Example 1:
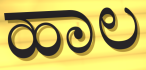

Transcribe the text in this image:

ಹಾಲ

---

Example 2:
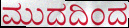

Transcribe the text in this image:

ಮುದದಿಂದ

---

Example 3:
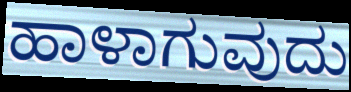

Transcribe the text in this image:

ಹಾಳಾಗುವುದು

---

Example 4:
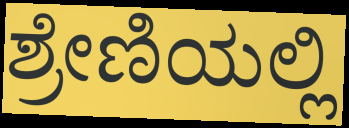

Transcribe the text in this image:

ಶ್ರೇಣಿಯಲ್ಲಿ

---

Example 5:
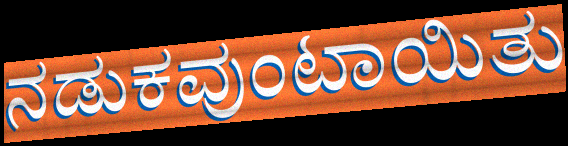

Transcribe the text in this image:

ನಡುಕವುಂಟಾಯಿತು